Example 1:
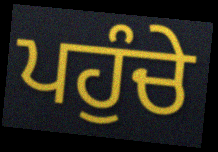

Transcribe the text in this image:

ਪਹੁੰਚੇ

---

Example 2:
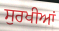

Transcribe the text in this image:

ਸੁਰਖੀਆਂ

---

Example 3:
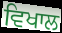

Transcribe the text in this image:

ਵਿਖਾਲ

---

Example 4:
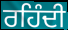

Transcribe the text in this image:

ਰਹਿੰਦੀ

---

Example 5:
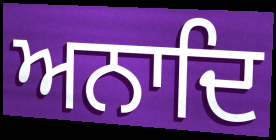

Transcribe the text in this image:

ਅਨਾਦਿ